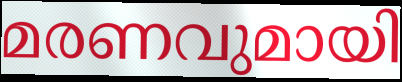
മരണവുമായി